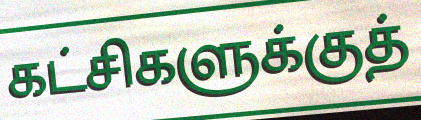
கட்சிகளுக்குத்